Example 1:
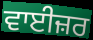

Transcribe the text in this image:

ਵਾਈਜ਼ਰ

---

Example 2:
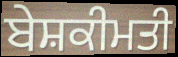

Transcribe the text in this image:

ਬੇਸ਼ਕੀਮਤੀ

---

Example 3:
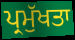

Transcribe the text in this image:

ਪ੍ਰਮੁੱਖਤਾ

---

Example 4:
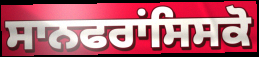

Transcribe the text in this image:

ਸਾਨਫਰਾਂਸਿਸਕੋ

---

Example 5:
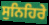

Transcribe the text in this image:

ਸੁਨਿਹਿਰੇ